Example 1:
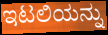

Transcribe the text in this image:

ಇಟಲಿಯನ್ನು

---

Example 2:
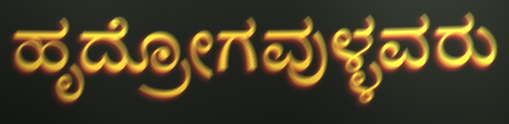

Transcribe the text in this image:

ಹೃದ್ರೋಗವುಳ್ಳವರು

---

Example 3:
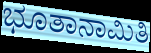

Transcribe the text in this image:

ಭೂತಾನಾಮಿತಿ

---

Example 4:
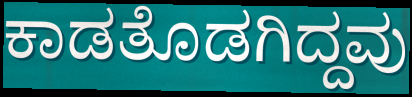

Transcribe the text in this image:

ಕಾಡತೊಡಗಿದ್ದವು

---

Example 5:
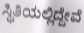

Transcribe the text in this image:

ಸ್ಥಿತಿಯಲ್ಲಿದ್ದೇವೆ